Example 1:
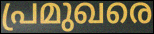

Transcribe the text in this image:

പ്രമുഖരെ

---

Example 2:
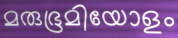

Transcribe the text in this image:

മരുഭൂമിയോളം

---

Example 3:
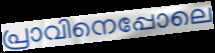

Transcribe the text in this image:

പ്രാവിനെപ്പോലെ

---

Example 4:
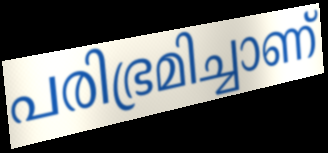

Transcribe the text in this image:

പരിഭ്രമിച്ചാണ്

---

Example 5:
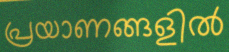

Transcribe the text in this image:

പ്രയാണങ്ങളിൽ